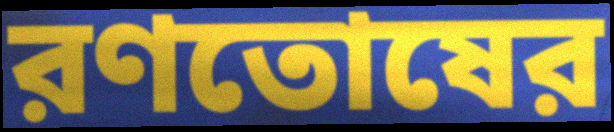
রণতোষের